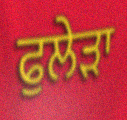
ਫੁਲੇੜਾ